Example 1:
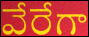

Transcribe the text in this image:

వేరేగా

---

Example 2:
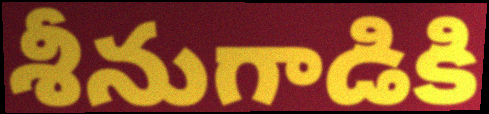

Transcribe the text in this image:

శీనుగాడికి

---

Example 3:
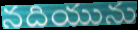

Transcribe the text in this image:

నదియును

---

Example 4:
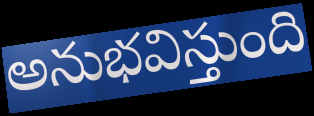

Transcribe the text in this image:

అనుభవిస్తుంది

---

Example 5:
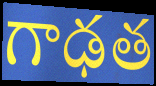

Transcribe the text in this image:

గాఢత